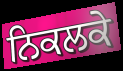
ਨਿਕਲਕੇ